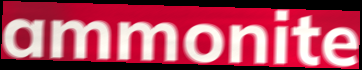
ammonite